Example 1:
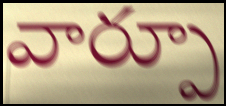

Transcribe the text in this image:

వార్పూ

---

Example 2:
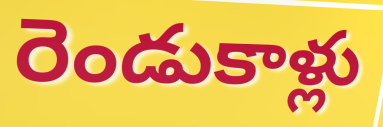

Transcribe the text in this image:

రెండుకాళ్లు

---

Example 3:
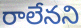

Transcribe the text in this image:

రాలేనని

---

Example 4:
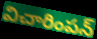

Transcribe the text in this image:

విచారింపన్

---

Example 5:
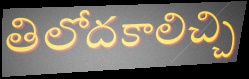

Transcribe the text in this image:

తిలోదకాలిచ్చి